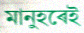
মানুহৰেই